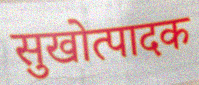
सुखोत्पादक